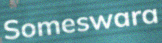
Someswara